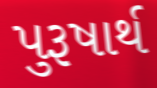
પુરૂષાર્થ